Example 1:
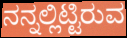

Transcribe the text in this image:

ನನ್ನಲ್ಲಿಟ್ಟಿರುವ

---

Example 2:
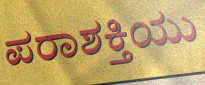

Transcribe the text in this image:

ಪರಾಶಕ್ತಿಯು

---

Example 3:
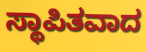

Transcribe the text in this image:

ಸ್ಥಾಪಿತವಾದ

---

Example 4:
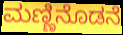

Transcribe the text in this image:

ಮಣ್ಣಿನೊಡನೆ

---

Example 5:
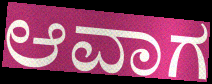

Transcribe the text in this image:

ಆವಾಗ